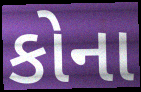
કોના